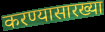
करण्यासारख्या